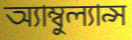
অ্যাম্বুল্যান্স